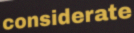
considerate